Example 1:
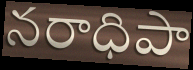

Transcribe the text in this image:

నరాధిపా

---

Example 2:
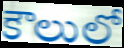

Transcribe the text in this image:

కౌలులో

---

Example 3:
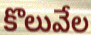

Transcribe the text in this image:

కొలువేల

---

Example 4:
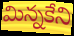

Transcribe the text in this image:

మిన్నకేని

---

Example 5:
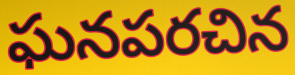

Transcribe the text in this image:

ఘనపరచిన